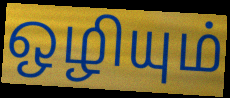
ஒழியும்